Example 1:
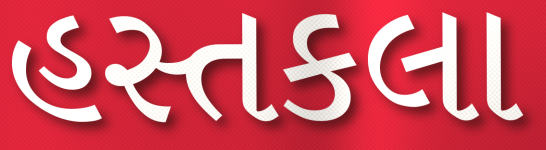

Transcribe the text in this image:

હસ્તકલા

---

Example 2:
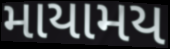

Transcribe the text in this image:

માયામય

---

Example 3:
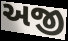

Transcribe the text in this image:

અજી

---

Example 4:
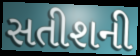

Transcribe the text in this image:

સતીશની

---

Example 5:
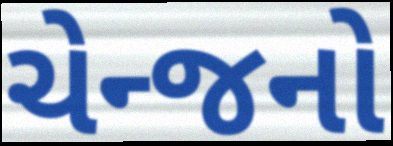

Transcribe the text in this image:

ચેન્જનો